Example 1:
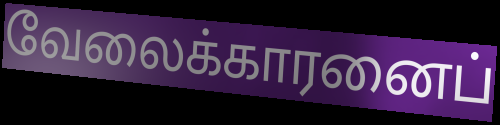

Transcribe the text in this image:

வேலைக்காரனைப்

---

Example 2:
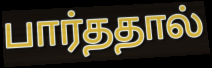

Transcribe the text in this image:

பார்ததால்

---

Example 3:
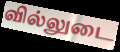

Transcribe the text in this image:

வில்லுடை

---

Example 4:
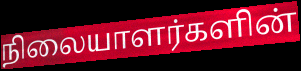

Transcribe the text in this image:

நிலையாளர்களின்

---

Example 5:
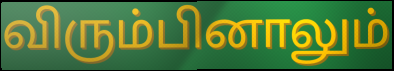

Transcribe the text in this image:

விரும்பினாலும்